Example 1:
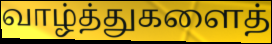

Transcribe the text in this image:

வாழ்த்துகளைத்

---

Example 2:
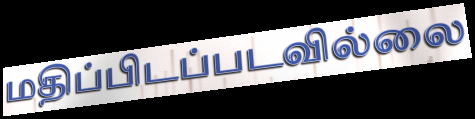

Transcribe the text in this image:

மதிப்பிடப்படவில்லை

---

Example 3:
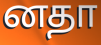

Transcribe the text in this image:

னதா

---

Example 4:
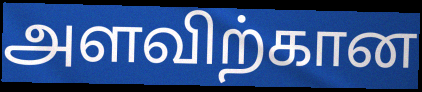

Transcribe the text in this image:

அளவிற்கான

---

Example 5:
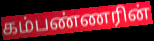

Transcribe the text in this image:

கம்பண்ணரின்